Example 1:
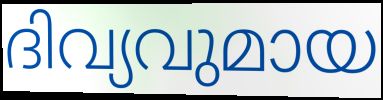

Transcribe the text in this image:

ദിവ്യവുമായ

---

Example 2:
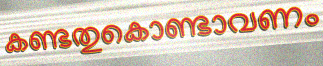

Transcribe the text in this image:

കണ്ടതുകൊണ്ടാവണം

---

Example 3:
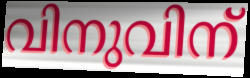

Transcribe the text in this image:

വിനുവിന്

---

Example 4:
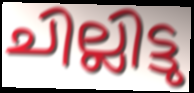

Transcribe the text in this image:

ചില്ലിട്ടു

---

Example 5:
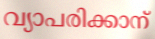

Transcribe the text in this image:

വ്യാപരിക്കാന്